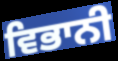
ਵਿਭਾਨੀ